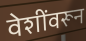
वेशींवरून